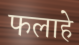
फलाहे